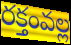
రక్తంవల్ల